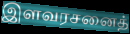
இளவரசனைத்